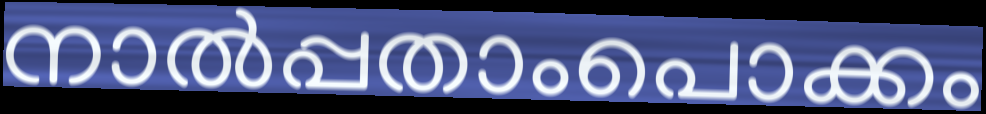
നാൽപ്പതാംപൊക്കം